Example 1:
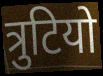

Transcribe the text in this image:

त्रुटियो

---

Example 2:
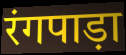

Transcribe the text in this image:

रंगपाड़ा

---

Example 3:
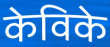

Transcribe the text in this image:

केविके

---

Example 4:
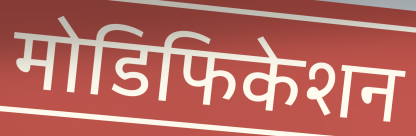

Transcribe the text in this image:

मोडिफिकेशन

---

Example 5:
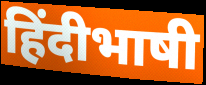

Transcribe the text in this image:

हिंदीभाषी